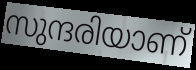
സുന്ദരിയാണ്